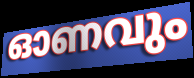
ഓണവും